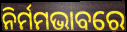
ନିର୍ମମଭାବରେ